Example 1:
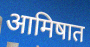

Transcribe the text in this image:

आमिषात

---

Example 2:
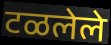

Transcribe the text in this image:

टळलेले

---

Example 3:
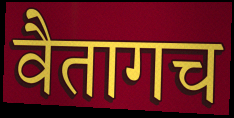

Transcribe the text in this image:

वैतागच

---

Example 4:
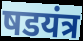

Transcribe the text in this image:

षडयंत्र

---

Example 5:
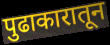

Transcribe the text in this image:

पुढाकारातून